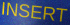
INSERT